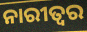
ନାରୀତ୍ଵର